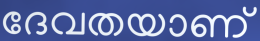
ദേവതയാണ്